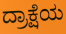
ದ್ರಾಕ್ಷೆಯ